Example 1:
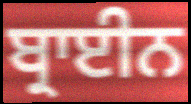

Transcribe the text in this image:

ਬ੍ਰਾਈਨ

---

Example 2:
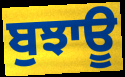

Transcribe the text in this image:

ਬੁਝਾਊ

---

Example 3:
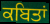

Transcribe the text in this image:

ਕਬਿਤਾਂ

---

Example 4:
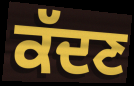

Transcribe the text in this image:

ਕੱਦਣ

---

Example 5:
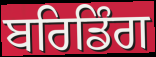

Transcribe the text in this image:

ਬਰਿਡਿੰਗ